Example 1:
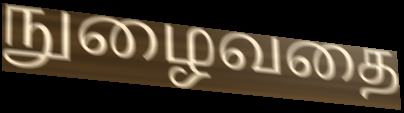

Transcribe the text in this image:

நுழைவதை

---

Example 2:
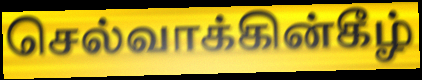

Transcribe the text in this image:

செல்வாக்கின்கீழ்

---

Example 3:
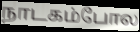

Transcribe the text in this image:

நாடகம்போல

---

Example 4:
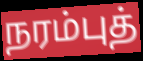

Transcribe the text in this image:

நரம்புத்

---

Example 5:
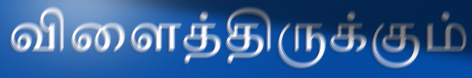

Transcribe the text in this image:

விளைத்திருக்கும்